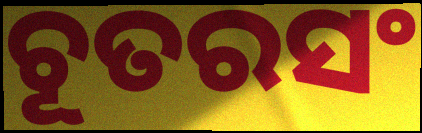
ଚୂତରସଂ